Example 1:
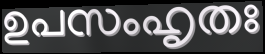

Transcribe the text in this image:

ഉപസംഹൃതഃ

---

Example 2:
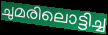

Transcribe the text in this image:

ചുമരിലൊട്ടിച്ച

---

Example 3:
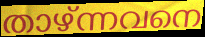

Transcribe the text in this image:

താഴ്ന്നവനെ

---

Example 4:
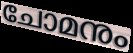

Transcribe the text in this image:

ചോമനും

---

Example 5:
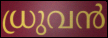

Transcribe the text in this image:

ധ്രുവൻ